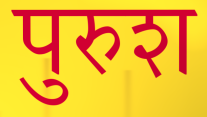
पुरुश